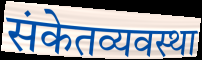
संकेतव्यवस्था